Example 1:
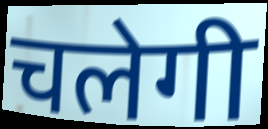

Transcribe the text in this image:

चलेगी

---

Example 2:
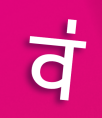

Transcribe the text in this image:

व॑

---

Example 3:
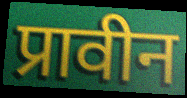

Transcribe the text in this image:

प्रावीन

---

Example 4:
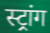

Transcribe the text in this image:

स्ट्रांग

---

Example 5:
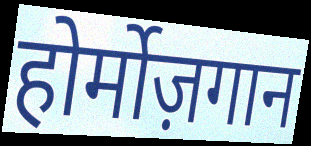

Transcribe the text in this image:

होर्मोज़गान